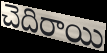
చెదిరాయి